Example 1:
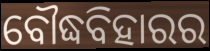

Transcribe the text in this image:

ବୌଦ୍ଧବିହାରର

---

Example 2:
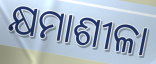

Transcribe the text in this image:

କ୍ଷମାଶୀଳା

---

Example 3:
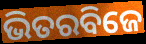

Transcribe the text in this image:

ଭିତରବିଜେ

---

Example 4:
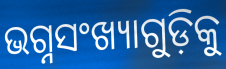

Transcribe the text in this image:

ଭଗ୍ନସଂଖ୍ୟାଗୁଡ଼ିକୁ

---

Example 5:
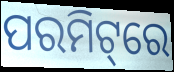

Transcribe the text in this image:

ପରମିଟ୍‌ରେ